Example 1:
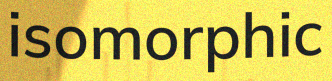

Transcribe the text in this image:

isomorphic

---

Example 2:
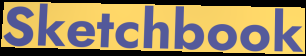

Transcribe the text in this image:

Sketchbook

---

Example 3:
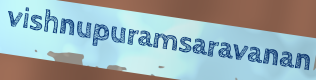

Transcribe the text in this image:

vishnupuramsaravanan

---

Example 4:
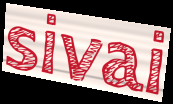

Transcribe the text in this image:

sivai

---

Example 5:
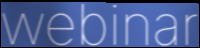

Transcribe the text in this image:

webinar